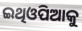
ଇଥିଓପିଆକୁ